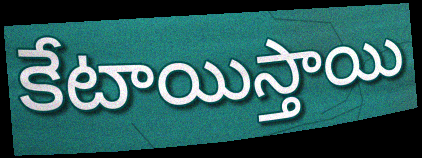
కేటాయిస్తాయి